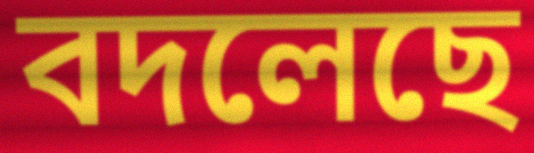
বদলেছে